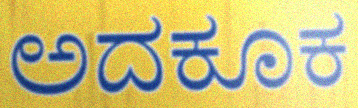
ಅದಕೂಕ